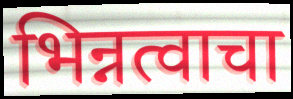
भिन्नत्वाचा